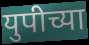
युपीच्या